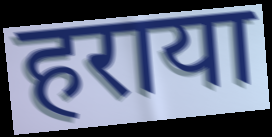
हराया